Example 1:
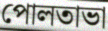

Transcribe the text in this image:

পোলতাভা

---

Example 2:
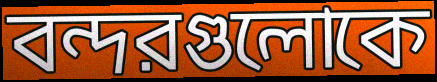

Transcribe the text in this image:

বন্দরগুলোকে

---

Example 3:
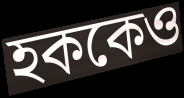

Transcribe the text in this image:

হককেও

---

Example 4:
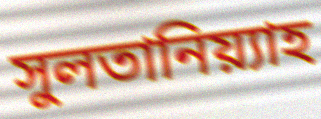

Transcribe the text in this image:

সুলতানিয়্যাহ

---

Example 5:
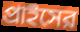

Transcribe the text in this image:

প্রাইসের